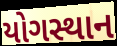
યોગસ્થાન